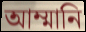
আম্মানি